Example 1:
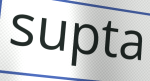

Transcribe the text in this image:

supta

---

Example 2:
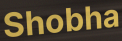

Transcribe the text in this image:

Shobha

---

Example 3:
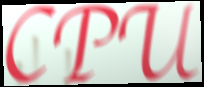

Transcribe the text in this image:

CPU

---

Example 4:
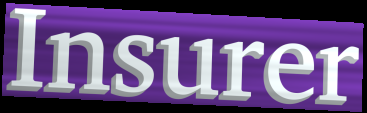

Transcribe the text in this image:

Insurer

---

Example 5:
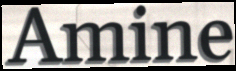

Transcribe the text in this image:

Amine